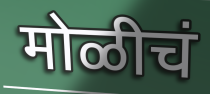
मोळीचं